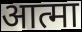
आत्मा